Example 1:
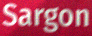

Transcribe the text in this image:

Sargon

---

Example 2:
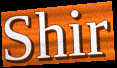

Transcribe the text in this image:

Shir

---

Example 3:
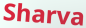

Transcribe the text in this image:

Sharva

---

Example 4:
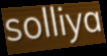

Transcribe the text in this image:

solliya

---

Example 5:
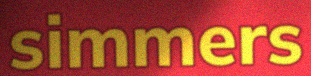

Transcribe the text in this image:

simmers